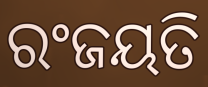
ରଂଜୟତି